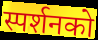
स्पर्शनको